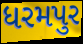
ધરમપુર